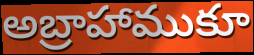
అబ్రాహాముకూ